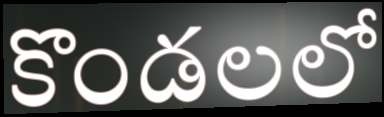
కొండలలో